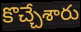
కొచ్చేశారు